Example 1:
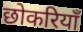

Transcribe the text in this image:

छोकरियाँ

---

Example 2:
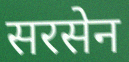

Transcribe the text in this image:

सरसेन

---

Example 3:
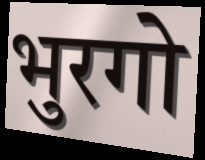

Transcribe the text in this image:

भुरगो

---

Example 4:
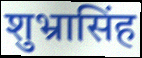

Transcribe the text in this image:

शुभ्रासिंह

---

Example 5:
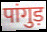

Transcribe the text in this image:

पांगुड़